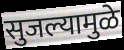
सुजल्यामुळे